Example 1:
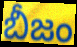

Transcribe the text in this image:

బీజం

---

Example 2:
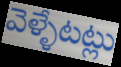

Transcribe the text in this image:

వెళ్ళేటట్లు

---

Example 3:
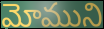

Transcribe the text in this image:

మోముని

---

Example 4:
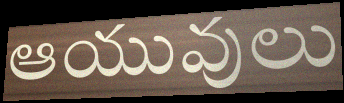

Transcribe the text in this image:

ఆయువులు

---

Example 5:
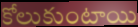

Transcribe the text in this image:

కోలుకుంటాయి